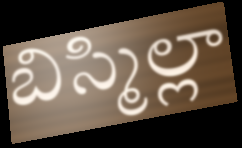
బిస్మిల్లా